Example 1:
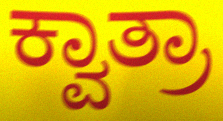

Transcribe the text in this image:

ಕ್ವಾತ್ರಾ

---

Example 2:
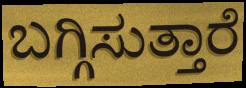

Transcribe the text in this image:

ಬಗ್ಗಿಸುತ್ತಾರೆ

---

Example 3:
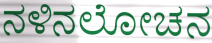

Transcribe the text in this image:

ನಳಿನಲೋಚನ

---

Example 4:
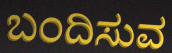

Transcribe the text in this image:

ಬಂದಿಸುವ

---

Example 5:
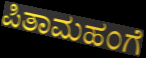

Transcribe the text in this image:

ಪಿತಾಮಹಂಗೆ